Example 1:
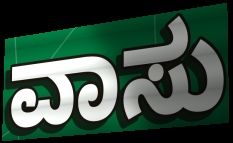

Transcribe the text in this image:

ವಾಸು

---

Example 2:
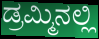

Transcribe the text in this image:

ಡ್ರಮ್ಮಿನಲ್ಲಿ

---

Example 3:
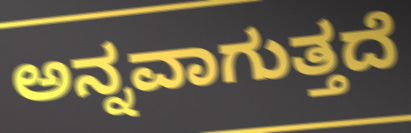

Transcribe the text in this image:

ಅನ್ನವಾಗುತ್ತದೆ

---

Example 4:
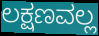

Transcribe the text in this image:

ಲಕ್ಷಣವಲ್ಲ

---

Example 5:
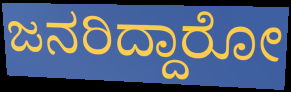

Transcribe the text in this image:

ಜನರಿದ್ದಾರೋ